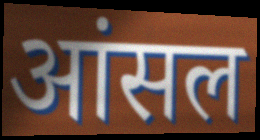
आंसल